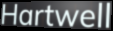
Hartwell